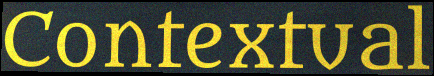
Contextual